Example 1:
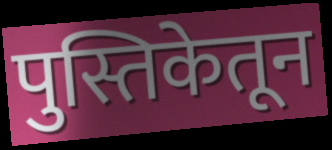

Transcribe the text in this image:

पुस्तिकेतून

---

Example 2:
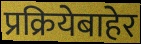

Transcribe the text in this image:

प्रक्रियेबाहेर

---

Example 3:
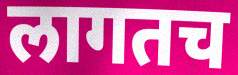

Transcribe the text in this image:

लागतच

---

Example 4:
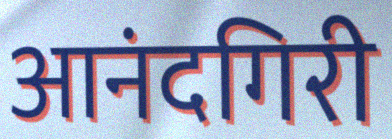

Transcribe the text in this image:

आनंदगिरी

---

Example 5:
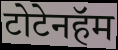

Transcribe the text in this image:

टोटेनहॅम